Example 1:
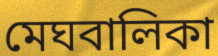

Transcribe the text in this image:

মেঘবালিকা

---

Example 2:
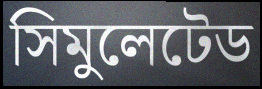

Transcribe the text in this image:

সিমুলেটেড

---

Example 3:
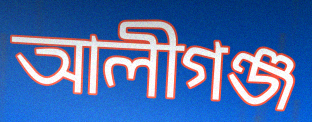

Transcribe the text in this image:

আলীগঞ্জ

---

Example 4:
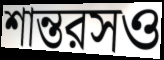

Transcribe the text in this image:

শান্তরসও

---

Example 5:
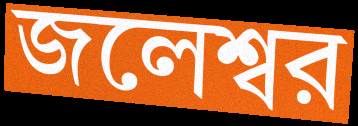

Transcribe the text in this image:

জলেশ্বর